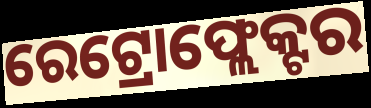
ରେଟ୍ରୋଫ୍ଲେକ୍ଟର